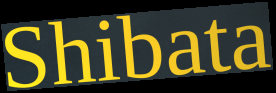
Shibata